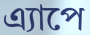
এ্যাপে